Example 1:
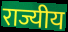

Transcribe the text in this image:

राज्यीय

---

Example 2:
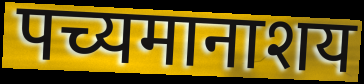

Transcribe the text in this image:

पच्यमानाशय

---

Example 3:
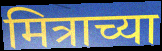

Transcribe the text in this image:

मित्राच्या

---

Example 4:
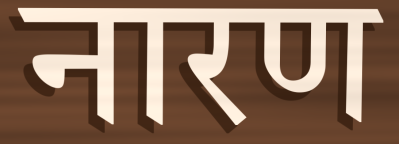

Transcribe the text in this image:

नारण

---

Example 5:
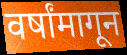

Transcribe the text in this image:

वर्षांमागून